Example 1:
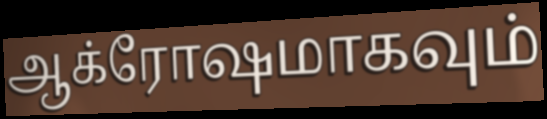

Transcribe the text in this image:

ஆக்ரோஷமாகவும்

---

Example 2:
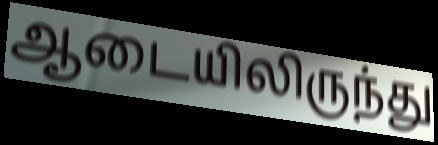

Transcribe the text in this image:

ஆடையிலிருந்து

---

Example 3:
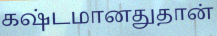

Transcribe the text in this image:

கஷ்டமானதுதான்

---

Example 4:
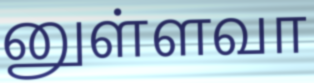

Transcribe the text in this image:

னுள்ளவா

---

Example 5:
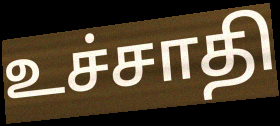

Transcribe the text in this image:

உச்சாதி